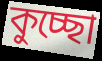
কুচ্ছো